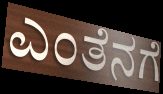
ಎಂತೆನಗೆ